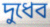
দুধেব